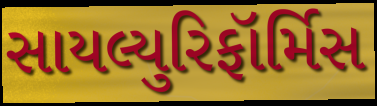
સાયલ્યુરિફૉર્મિસ